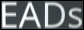
EADs